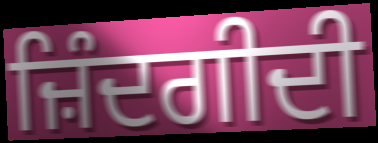
ਜ਼ਿੰਦਗੀਦੀ